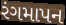
રંગમાપન